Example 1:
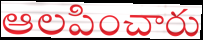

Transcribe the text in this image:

ఆలపించారు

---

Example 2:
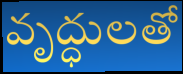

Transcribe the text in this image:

వృద్ధులతో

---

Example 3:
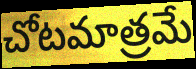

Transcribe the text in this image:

చోటమాత్రమే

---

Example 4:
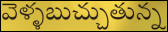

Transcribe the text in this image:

వెళ్ళబుచ్చుతున్న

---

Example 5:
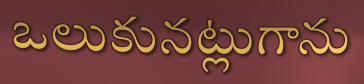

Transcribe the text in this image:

ఒలుకునట్లుగాను